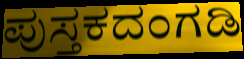
ಪುಸ್ತಕದಂಗಡಿ